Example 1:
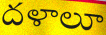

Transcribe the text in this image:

దళాలూ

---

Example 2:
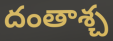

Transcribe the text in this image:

దంతాశ్చ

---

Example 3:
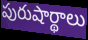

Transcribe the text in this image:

పురుషార్థాలు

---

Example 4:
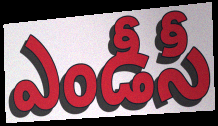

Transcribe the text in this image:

ఎండీసీ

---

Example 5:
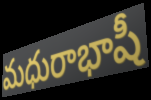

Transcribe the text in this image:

మధురాభాషీ